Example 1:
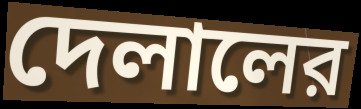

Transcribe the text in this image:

দেলালের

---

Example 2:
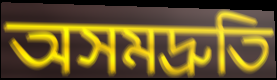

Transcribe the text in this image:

অসমদ্রুতি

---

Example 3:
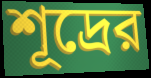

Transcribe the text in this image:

শূদ্রের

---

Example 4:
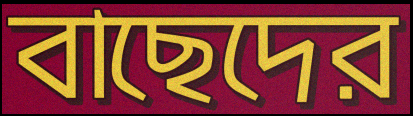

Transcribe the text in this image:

বাছেদের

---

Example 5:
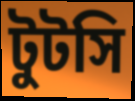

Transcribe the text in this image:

টুটসি